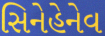
સિનેહેનેવ